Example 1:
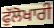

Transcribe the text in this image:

ਫੁੱਲੋਖਾਰੀ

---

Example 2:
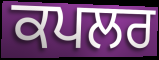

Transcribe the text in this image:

ਕਪਲਰ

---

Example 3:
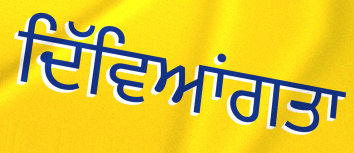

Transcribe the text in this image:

ਦਿੱਵਿਆਂਗਤਾ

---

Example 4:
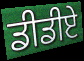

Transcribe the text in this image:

ਡੀਡੀਏ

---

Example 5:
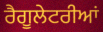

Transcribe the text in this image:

ਰੈਗੂਲੇਟਰੀਆਂ